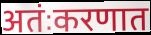
अतंःकरणात